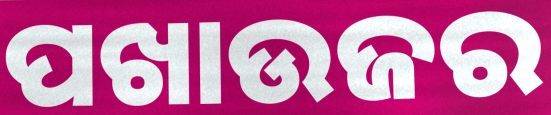
ପଖାଉଜର